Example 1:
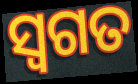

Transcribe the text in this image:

ସ୍ଵଗତ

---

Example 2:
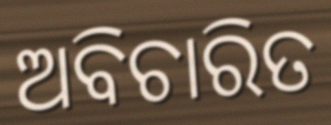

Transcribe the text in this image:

ଅବିଚାରିତ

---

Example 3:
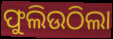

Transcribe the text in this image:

ଫୁଲିଉଠିଲା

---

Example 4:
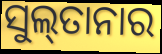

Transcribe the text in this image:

ସୁଲ୍‌ତାନାର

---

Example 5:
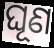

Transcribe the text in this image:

ଘୂଣ